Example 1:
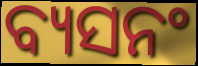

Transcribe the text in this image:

ବ୍ୟସନଂ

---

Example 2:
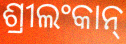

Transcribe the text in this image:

ଶ୍ରୀଲଂକାନ୍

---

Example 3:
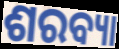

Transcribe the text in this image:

ଶରବ୍ୟା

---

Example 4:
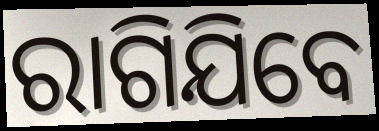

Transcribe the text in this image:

ରାଗିଯିବେ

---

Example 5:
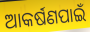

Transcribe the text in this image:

ଆକର୍ଷଣପାଇଁ